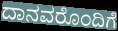
ದಾನವರೊಂದಿಗೆ